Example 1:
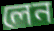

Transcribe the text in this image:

লেন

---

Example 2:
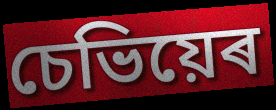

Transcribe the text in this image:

চেভিয়েৰ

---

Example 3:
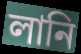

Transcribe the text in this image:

লানি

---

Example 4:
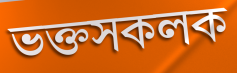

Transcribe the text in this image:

ভক্তসকলক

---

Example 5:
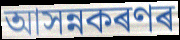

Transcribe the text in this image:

আসন্নকৰণৰ